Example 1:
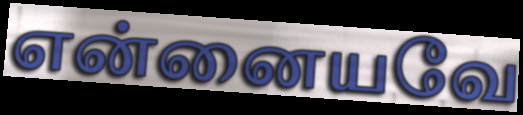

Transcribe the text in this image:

என்னையவே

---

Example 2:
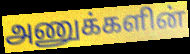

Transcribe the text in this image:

அணுக்களின்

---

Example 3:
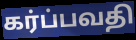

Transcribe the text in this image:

கர்ப்பவதி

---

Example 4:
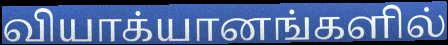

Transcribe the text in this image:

வியாக்யானங்களில்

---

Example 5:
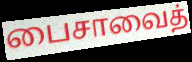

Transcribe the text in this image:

பைசாவைத்